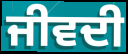
ਜੀਵਦੀ